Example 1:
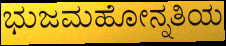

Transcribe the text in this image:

ಭುಜಮಹೋನ್ನತಿಯ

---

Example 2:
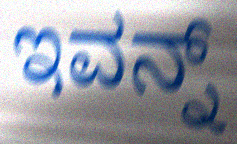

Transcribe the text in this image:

ಇವನ್ನ್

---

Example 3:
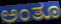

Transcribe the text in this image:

ಅಂತೂ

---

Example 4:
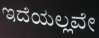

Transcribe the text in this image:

ಇದೆಯಲ್ಲವೇ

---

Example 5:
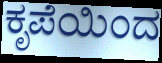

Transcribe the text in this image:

ಕೃಪೆಯಿಂದ